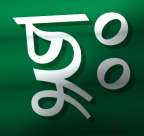
ছুঃ